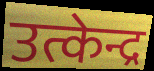
उत्केन्द्र